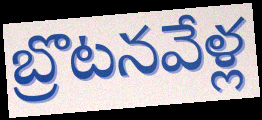
బ్రొటనవేళ్ల